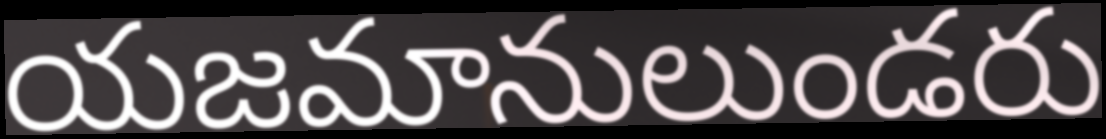
యజమానులుండరు